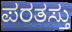
ಪರತಸ್ತು